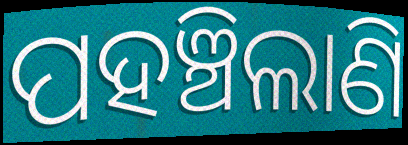
ପହଞ୍ଚିଲାଣି